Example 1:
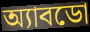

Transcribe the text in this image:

অ্যাবডো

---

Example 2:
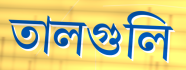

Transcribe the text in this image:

তালগুলি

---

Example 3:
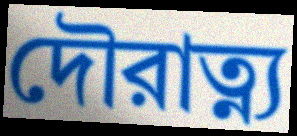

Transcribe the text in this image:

দৌরাত্ন্য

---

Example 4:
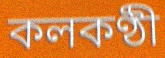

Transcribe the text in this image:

কলকণ্ঠী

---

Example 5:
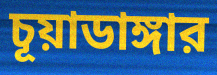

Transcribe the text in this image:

চূয়াডাঙ্গার